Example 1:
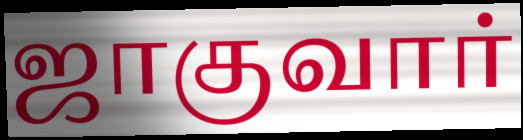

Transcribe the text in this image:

ஜாகுவார்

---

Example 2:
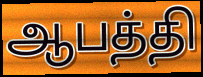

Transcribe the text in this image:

ஆபத்தி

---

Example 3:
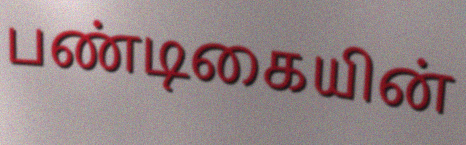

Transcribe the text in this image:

பண்டிகையின்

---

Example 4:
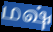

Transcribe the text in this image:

மஷ்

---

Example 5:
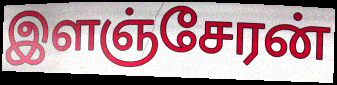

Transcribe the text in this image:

இளஞ்சேரன்